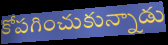
కోపగించుకున్నాడు